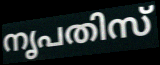
നൃപതിസ്